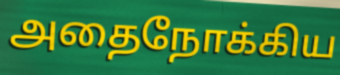
அதைநோக்கிய